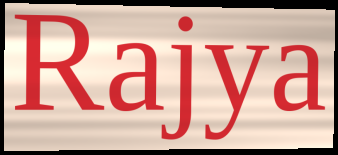
Rajya